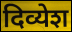
दिव्येश